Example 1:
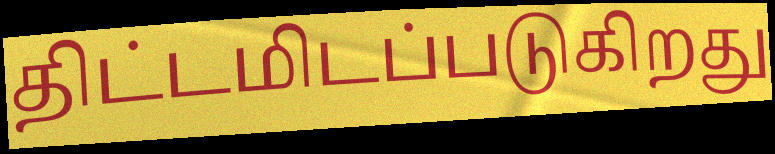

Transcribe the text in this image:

திட்டமிடப்படுகிறது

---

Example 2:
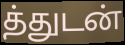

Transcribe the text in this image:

த்துடன்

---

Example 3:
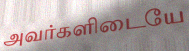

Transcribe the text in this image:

அவர்களிடையே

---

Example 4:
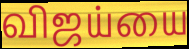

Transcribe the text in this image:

விஜய்யை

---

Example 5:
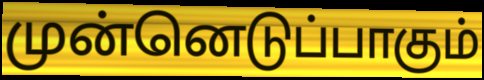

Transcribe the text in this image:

முன்னெடுப்பாகும்